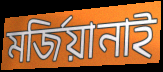
মৰ্জিয়ানাই